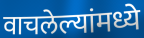
वाचलेल्यांमध्ये